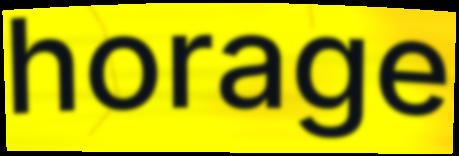
horage